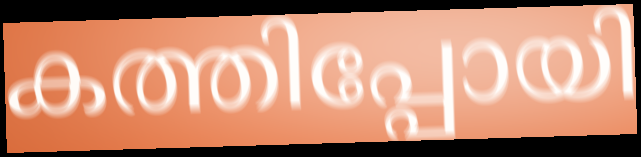
കത്തിപ്പോയി